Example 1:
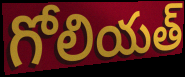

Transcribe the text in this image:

గోలియత్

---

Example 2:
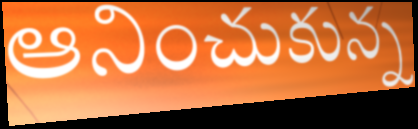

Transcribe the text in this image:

ఆనించుకున్న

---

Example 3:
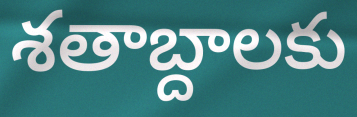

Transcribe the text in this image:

శతాబ్దాలకు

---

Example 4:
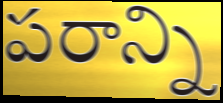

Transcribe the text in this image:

పరాన్ని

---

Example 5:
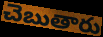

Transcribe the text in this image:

చెబుతారు